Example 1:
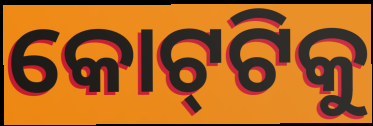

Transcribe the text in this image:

କୋଟ୍‌ଟିକୁ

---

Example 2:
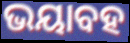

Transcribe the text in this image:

ଭୟାବହ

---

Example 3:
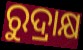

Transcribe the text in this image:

ରୁଦ୍ରାକ୍ଷ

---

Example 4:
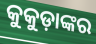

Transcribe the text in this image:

କୁକୁଡ଼ାଙ୍କର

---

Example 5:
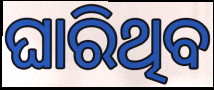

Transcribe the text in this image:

ଘାରିଥିବ